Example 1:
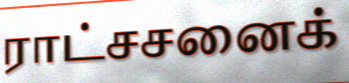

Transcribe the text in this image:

ராட்சசனைக்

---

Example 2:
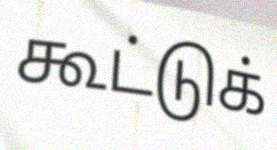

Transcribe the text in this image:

கூட்டுக்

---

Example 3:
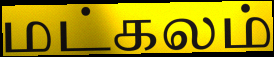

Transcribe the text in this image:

மட்கலம்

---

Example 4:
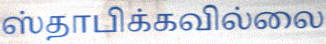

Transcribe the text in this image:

ஸ்தாபிக்கவில்லை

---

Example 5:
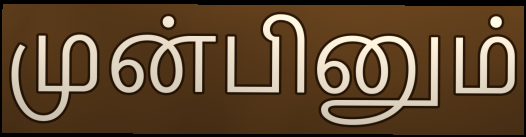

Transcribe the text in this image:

முன்பினும்